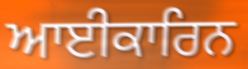
ਆਈਕਾਰਿਨ